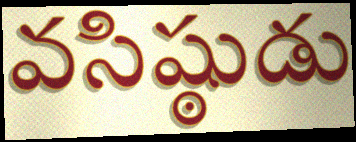
వసిష్ఠుడు